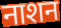
नाशन